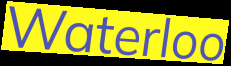
Waterloo